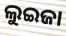
ଲୁଇଜା